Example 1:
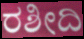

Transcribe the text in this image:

ರಶೀದಿ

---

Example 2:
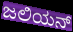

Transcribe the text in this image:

ಜಲಿಯನ್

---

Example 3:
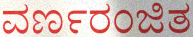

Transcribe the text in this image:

ವರ್ಣರಂಜಿತ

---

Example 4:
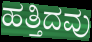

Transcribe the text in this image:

ಹತ್ತಿದವು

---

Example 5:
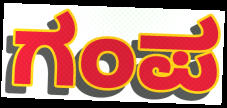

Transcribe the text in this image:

ಗಂಪ